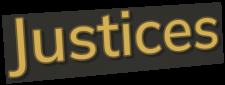
Justices